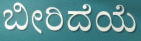
ಬೀರಿದೆಯೆ